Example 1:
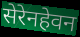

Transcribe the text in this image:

सेरेनहेवन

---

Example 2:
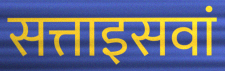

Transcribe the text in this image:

सत्ताइसवां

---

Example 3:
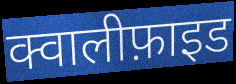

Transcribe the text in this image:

क्वालीफ़ाइड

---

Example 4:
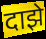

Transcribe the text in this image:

दाझे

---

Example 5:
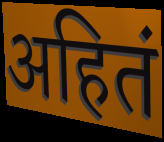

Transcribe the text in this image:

अहितं